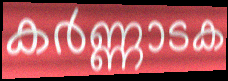
കർണ്ണാടക